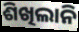
ଶିଖିଲାନି